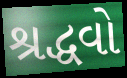
શ્રદ્ધવો